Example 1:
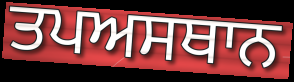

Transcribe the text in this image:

ਤਪਅਸਥਾਨ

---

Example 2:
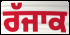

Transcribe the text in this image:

ਰੱਜਾਕ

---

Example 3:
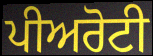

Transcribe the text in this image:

ਪੀਅਰੋਟੀ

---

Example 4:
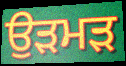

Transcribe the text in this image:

ਉੜਮੜ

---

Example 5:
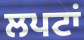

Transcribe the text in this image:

ਲਪਟਾਂ